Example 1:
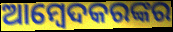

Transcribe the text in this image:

ଆମ୍ବେଦକରଙ୍କର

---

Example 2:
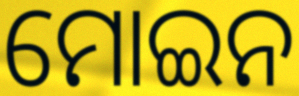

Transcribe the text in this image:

ମୋଇନ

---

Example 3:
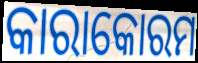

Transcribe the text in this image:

କାରାକୋରମ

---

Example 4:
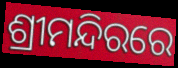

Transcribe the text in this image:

ଶ୍ରୀମନ୍ଦିରରେ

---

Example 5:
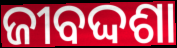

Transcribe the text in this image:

ଜୀବଦ୍ଦଶା